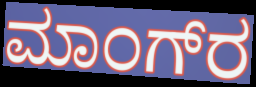
ಮಾಂಗ್‌ರ